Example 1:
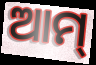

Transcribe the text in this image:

ଆମ୍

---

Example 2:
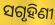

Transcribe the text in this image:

ସଗୃହିଣୀ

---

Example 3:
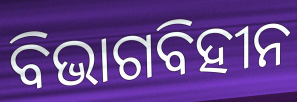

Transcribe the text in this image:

ବିଭାଗବିହୀନ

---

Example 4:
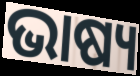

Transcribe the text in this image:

ଭାଷ୍ୟ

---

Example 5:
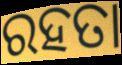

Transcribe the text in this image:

ରହତା